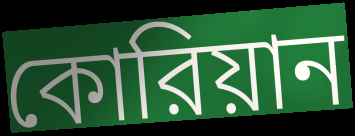
কোরিয়ান